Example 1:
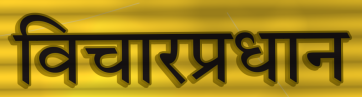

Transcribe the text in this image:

विचारप्रधान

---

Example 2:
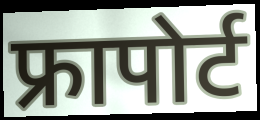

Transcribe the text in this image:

फ्रापोर्ट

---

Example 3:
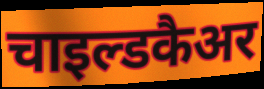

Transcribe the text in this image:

चाइल्डकैअर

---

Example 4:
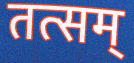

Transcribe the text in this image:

तत्सम्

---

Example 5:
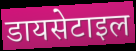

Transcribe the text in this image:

डायसेटाइल